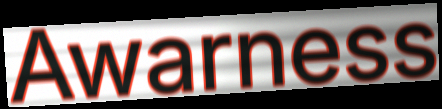
Awarness